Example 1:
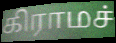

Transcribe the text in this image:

கிராமச்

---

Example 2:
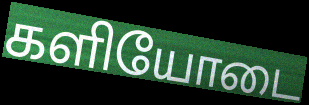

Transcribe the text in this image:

களியோடை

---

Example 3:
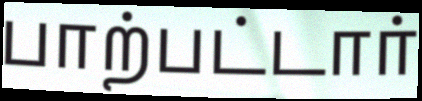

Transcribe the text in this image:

பாற்பட்டார்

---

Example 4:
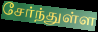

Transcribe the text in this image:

சேர்ந்துள்ள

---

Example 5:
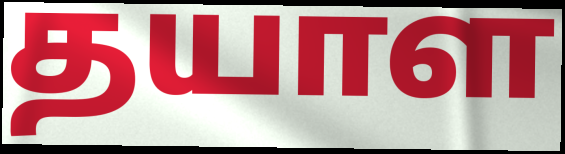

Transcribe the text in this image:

தயாள